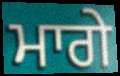
ਮਾਗੇ